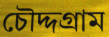
চৌদ্দগ্রাম